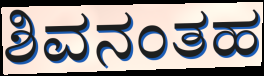
ಶಿವನಂತಹ